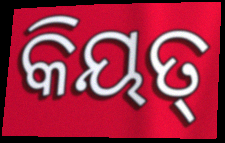
କିୟତ୍